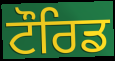
ਟੌਰਿਡ